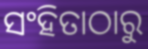
ସଂହିତାଠାରୁ